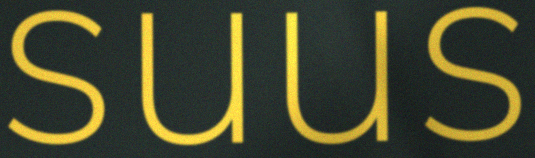
suus